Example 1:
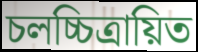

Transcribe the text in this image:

চলচ্চিত্রায়িত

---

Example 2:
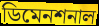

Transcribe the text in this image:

ডিমেনশনাল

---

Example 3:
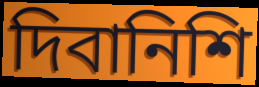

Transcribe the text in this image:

দিবানিশি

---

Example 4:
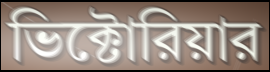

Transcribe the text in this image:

ভিক্টোরিয়ার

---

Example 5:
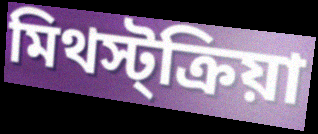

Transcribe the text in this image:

মিথস্ট্ক্রিয়া